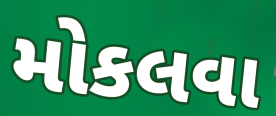
મોકલવા